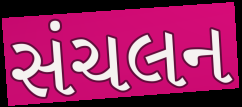
સંચલન